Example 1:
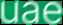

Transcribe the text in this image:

uae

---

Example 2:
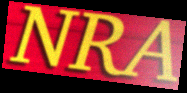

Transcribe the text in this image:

NRA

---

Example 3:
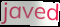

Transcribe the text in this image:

javed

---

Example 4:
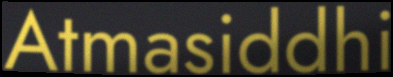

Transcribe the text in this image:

Atmasiddhi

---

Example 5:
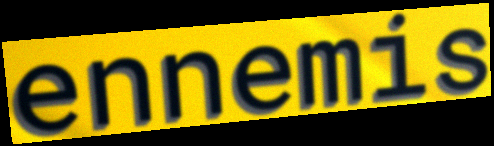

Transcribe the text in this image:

ennemis